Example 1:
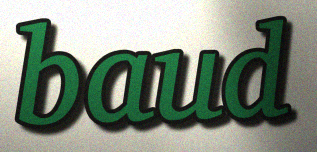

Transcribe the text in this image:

baud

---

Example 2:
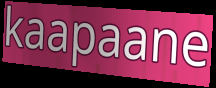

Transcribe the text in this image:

kaapaane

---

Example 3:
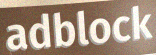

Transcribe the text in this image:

adblock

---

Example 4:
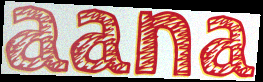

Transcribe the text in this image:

aana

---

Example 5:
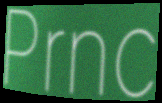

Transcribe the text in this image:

Prnc